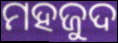
ମହଜୁଦ